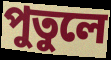
পুতুলে